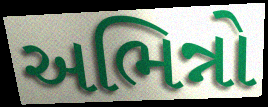
અભિન્નો